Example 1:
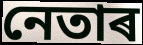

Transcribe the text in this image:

নেতাৰ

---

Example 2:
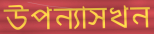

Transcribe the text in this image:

উপন্যাসখন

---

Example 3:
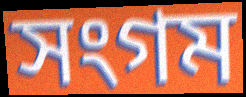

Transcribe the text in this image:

সংগম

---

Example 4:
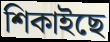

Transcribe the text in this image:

শিকাইছে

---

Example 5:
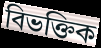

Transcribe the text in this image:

বিভক্তিক